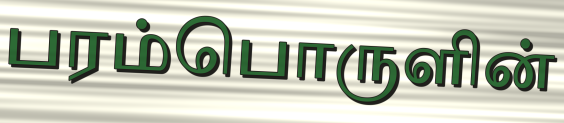
பரம்பொருளின்